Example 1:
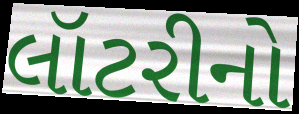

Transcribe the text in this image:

લૉટરીનો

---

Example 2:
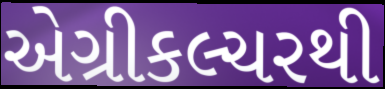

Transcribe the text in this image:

એગ્રીકલ્ચરથી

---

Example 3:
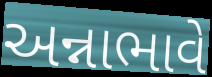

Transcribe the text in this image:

અન્નાભાવે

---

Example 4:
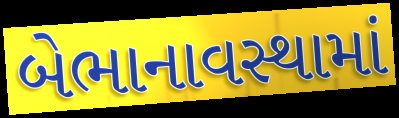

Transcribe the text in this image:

બેભાનાવસ્થામાં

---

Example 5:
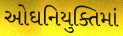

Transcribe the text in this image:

ઓઘનિયુક્તિમાં